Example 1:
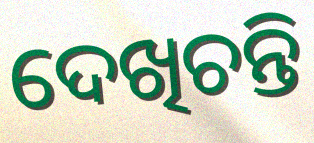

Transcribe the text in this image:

ଦେଖିଚନ୍ତି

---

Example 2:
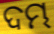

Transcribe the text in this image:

ଦମ୍ଭ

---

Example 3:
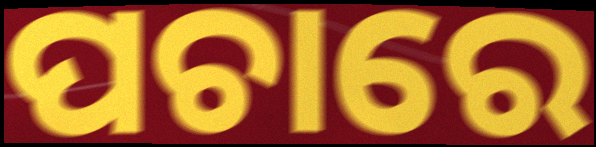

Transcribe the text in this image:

ପଚାରେ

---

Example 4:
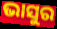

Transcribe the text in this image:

ଭାସୁର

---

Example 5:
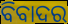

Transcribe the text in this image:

ବିବାଦର